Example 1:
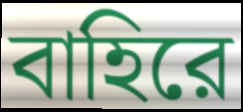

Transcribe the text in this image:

বাহিরে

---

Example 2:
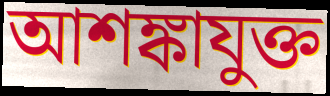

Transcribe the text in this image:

আশঙ্কাযুক্ত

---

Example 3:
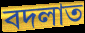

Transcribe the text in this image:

বদলাত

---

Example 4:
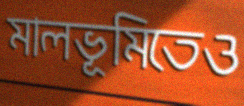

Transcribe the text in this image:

মালভূমিতেও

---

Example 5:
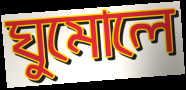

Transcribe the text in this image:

ঘুমোলে